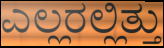
ಎಲ್ಲರಲ್ಲಿತ್ತು